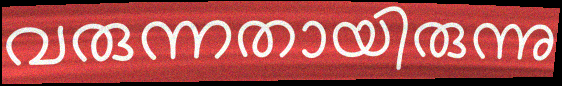
വരുന്നതായിരുന്നു